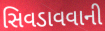
સિવડાવવાની